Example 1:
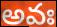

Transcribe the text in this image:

అవః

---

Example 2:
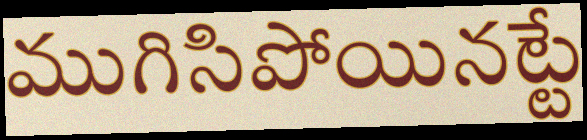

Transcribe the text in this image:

ముగిసిపోయినట్టే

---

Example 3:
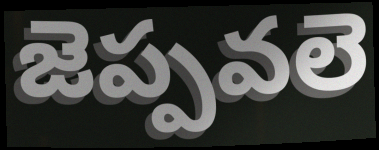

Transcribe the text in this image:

జెప్పవలె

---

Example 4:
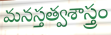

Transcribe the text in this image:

మనస్తత్వశాస్త్రం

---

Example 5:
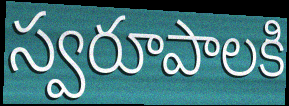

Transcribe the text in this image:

స్వరూపాలకి